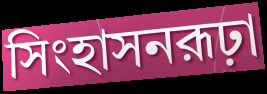
সিংহাসনরূঢ়া